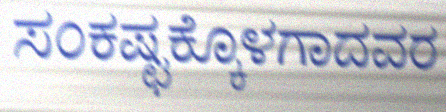
ಸಂಕಷ್ಟಕ್ಕೊಳಗಾದವರ